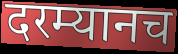
दरम्यानच